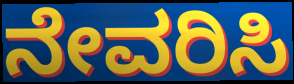
ನೇವರಿಸಿ